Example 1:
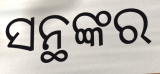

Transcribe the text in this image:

ସନ୍ଥଙ୍କର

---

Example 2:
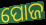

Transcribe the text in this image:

ପୋଜ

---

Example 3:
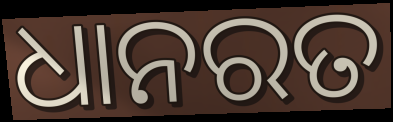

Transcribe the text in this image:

ଧାନରତ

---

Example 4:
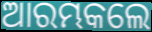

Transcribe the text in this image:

ଆରମ୍ଭକଲେ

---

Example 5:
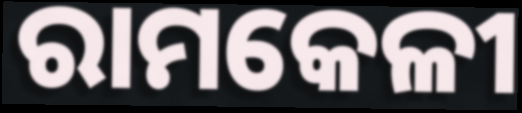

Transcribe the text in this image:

ରାମକେଳୀ